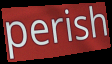
perish